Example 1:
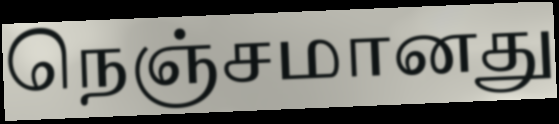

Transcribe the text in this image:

நெஞ்சமானது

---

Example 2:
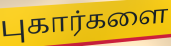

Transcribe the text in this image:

புகார்களை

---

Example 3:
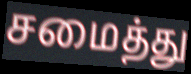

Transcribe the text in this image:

சமைத்து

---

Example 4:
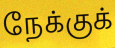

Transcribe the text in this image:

நேக்குக்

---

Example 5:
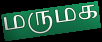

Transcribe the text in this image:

மருமக